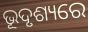
ଭୂଦୃଶ୍ୟରେ